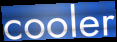
cooler